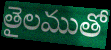
తైలముతో